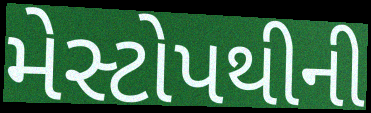
મેસ્ટોપથીની